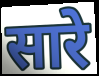
सारे